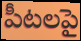
పీటలపై